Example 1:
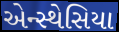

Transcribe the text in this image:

એન્સ્થેસિયા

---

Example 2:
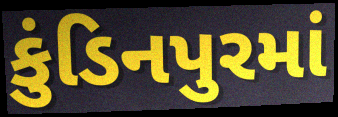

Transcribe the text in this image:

કુંડિનપુરમાં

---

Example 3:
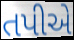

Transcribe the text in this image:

તપીએ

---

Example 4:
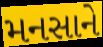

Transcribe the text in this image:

મનસાને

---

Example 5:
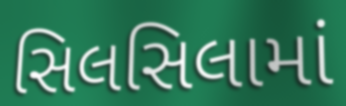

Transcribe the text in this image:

સિલસિલામાં